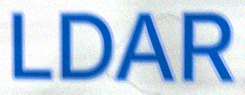
LDAR